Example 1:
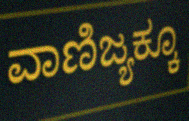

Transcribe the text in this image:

ವಾಣಿಜ್ಯಕ್ಕೂ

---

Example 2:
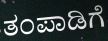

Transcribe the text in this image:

ತಂಪಾಡಿಗೆ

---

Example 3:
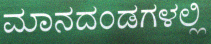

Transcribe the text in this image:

ಮಾನದಂಡಗಳಲ್ಲಿ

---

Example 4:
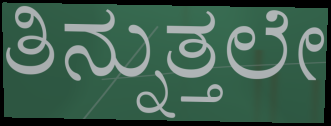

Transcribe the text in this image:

ತಿನ್ನುತ್ತಲೇ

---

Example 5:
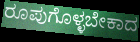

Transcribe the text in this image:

ರೂಪುಗೊಳ್ಳಬೇಕಾದ